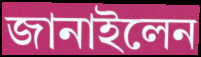
জানাইলেন